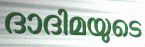
ദാദിമയുടെ